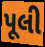
પૂલી